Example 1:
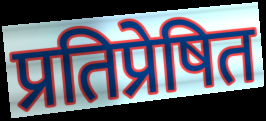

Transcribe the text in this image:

प्रतिप्रेषित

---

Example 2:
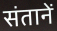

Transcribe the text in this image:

संतानें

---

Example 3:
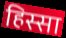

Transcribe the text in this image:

हिस्सा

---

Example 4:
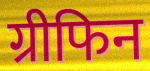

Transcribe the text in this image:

ग्रीफिन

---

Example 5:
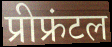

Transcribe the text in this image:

प्रीफ्रंटल